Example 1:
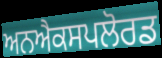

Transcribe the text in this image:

ਅਨਐਕਸਪਲੋਰਡ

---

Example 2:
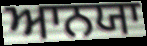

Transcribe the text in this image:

ਆਨਯਾ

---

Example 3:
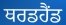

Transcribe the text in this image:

ਥਰਡਹੈਂਡ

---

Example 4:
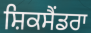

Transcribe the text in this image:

ਸ਼ਿਕਸੈਂਡਰਾ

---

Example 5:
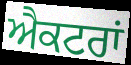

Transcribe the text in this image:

ਐਕਟਰਾਂ